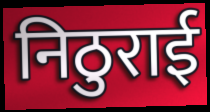
निठुराई